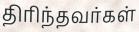
திரிந்தவர்கள்